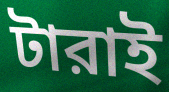
টারাই